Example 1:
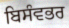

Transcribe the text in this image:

ਬਿਸੰਵਭਰ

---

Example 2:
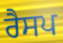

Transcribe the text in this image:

ਰੈਸਪ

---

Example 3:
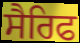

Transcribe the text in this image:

ਸੈਰਿਫ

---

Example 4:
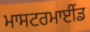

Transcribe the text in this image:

ਮਾਸਟਰਮਾਈਂਡ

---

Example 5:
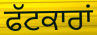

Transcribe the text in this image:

ਫੱਟਕਾਰਾਂ